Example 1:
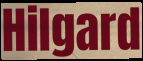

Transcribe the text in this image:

Hilgard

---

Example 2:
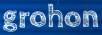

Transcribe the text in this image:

grohon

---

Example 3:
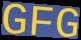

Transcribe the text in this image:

GFG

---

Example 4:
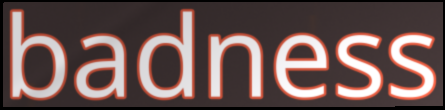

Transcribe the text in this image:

badness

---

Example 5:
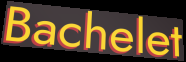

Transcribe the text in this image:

Bachelet